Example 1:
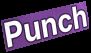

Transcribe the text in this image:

Punch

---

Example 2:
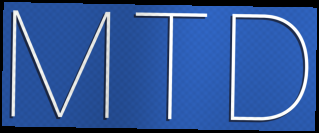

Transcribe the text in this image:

MTD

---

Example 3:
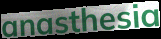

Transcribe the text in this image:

anasthesia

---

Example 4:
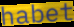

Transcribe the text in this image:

habet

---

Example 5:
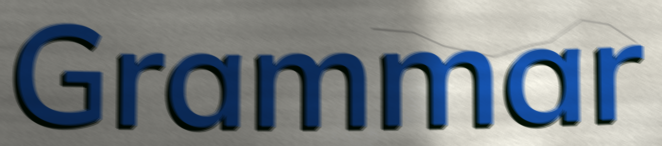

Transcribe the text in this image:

Grammar